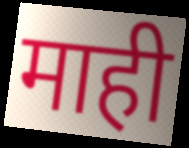
माही